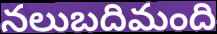
నలుబదిమంది